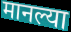
मानल्या